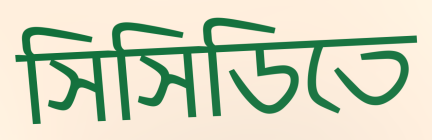
সিসিডিতে